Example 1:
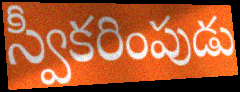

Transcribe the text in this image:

స్వీకరింపుడు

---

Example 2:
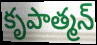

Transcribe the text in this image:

కృపాత్మన్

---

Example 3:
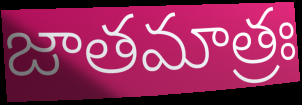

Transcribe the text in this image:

జాతమాత్రః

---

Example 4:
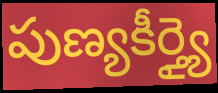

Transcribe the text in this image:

పుణ్యకీర్త్యై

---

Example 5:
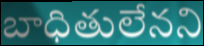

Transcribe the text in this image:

బాధితులేనని